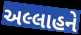
અલ્લાહને